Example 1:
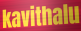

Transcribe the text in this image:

kavithalu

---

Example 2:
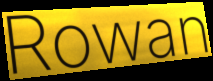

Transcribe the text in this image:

Rowan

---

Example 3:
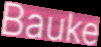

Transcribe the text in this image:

Bauke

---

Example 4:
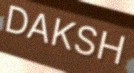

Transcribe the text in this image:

DAKSH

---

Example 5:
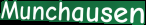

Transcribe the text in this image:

Munchausen